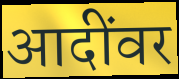
आदींवर